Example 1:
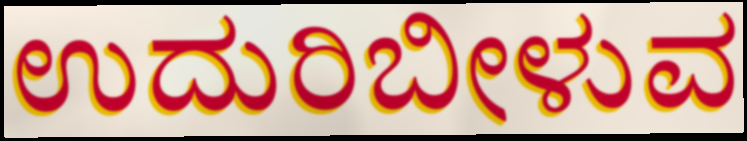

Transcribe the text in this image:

ಉದುರಿಬೀಳುವ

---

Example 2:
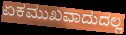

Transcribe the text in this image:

ಏಕಮುಖವಾದುದಲ್ಲ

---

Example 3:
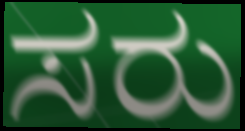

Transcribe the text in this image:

ಸರು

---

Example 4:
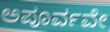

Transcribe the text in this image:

ಅಪೂರ್ವವೇ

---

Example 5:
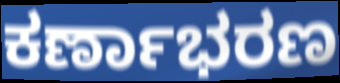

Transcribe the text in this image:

ಕರ್ಣಾಭರಣ